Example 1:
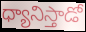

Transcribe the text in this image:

ధ్యానిస్తాడో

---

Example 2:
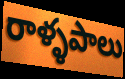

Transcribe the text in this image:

రాళ్ళపాలు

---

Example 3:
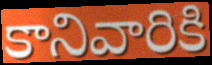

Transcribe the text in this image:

కానివారికి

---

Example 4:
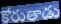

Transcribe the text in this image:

కోరుతాడు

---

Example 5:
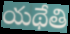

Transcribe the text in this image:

యథేతి